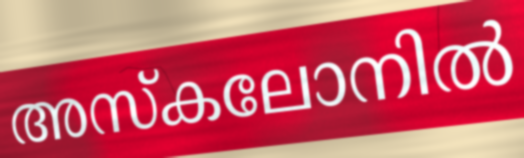
അസ്കലോനിൽ